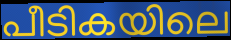
പീടികയിലെ